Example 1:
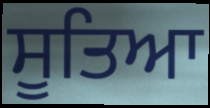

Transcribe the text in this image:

ਸੂਤਿਆ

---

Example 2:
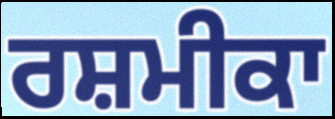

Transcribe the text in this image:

ਰਸ਼ਮੀਕਾ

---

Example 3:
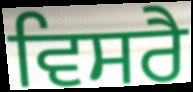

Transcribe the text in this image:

ਵਿਸਰੈ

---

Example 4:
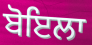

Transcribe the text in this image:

ਬੋਇਲਾ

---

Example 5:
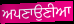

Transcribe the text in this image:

ਅਪਣਾਉਣੀਆ